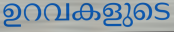
ഉറവകളുടെ